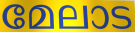
മേലാട